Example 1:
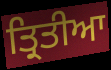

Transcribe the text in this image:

ਤ੍ਰਿਤੀਆ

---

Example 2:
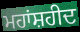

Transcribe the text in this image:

ਮਹਾਂਸ਼ਹੀਦ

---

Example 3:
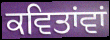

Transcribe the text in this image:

ਕਵਿਤਾਂਵਾਂ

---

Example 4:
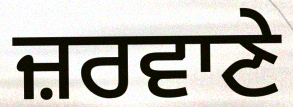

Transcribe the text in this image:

ਜ਼ਰਵਾਣੇ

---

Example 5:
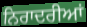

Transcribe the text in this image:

ਨਿਰਾਦਰੀਆਂ